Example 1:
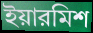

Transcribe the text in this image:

ইয়ারমিশ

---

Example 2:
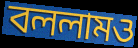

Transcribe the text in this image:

বললামও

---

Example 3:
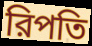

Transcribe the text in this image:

রিপতি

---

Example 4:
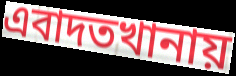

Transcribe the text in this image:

এবাদতখানায়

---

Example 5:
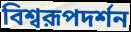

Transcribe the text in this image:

বিশ্বরূপদর্শন